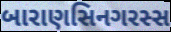
બારાણસિનગરસ્સ